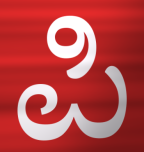
ಪಿ